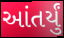
આંતર્યું